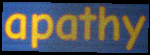
apathy